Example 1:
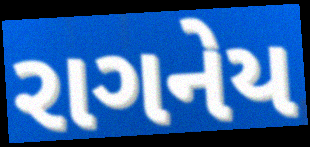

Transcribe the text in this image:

રાગનેય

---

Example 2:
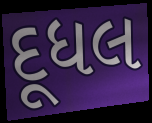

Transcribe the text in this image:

દૂધલ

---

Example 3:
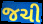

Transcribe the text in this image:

જચી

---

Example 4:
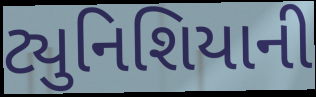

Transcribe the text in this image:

ટ્યુનિશિયાની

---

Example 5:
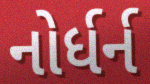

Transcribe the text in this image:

નોર્ધર્ન